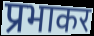
प्रभाकर